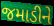
જમાડીને